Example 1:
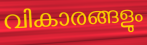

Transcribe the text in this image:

വികാരങ്ങളും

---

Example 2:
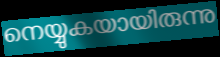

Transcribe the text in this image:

നെയ്യുകയായിരുന്നു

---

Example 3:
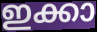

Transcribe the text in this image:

ഇക്കാ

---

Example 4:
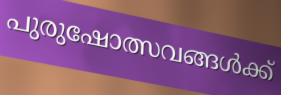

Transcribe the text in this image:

പുരുഷോത്സവങ്ങൾക്ക്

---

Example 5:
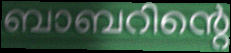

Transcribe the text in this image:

ബാബറിന്റെ